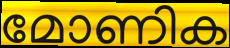
മോണിക